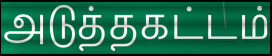
அடுத்தகட்டம்